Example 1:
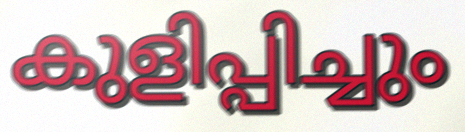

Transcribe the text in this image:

കുളിപ്പിച്ചും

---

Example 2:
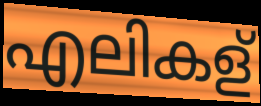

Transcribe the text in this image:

എലികള്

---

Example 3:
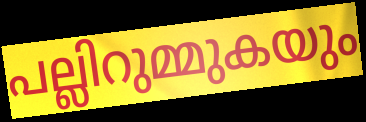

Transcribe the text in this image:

പല്ലിറുമ്മുകയും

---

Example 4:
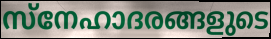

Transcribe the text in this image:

സ്നേഹാദരങ്ങളുടെ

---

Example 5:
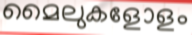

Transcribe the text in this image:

മൈലുകളോളം